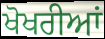
ਖੋਖਰੀਆਂ